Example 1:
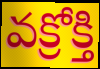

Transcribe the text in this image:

వక్రోక్తి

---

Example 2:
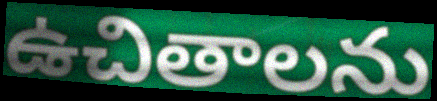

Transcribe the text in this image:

ఉచితాలను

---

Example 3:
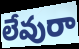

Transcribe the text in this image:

లేవురా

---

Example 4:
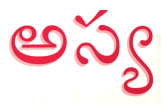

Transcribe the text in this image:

అస్య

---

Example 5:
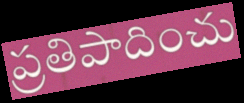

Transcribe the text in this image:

ప్రతిపాదించు